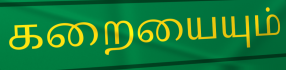
கறையையும்